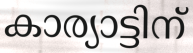
കാര്യാട്ടിന്